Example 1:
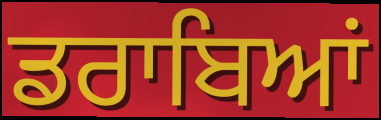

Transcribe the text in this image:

ਡਰਾਬਿਆਂ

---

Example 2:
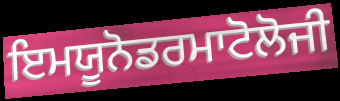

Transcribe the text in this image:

ਇਮਯੂਨੋਡਰਮਾਟੋਲੋਜੀ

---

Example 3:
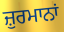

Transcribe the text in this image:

ਜ਼ੁਰਮਾਨਾਂ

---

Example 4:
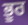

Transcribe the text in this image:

ਭੂਰ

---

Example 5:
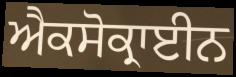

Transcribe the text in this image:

ਐਕਸੋਕ੍ਰਾਈਨ